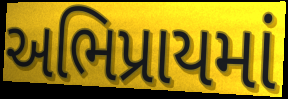
અભિપ્રાયમાં